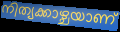
നിത്യക്കാഴ്ചയാണ്